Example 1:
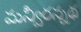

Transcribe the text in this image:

మన్వీరన్నథ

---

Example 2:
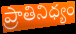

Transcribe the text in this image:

ప్రాతినిధ్యం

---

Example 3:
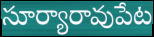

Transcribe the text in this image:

సూర్యారావుపేట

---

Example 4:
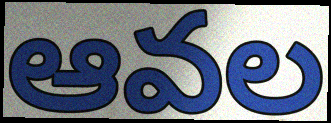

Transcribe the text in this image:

ఆవల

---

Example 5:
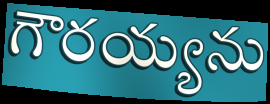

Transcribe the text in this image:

గౌరయ్యను